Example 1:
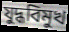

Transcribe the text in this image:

যুদ্ধবিমুখ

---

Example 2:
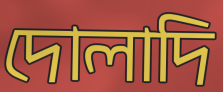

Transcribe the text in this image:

দোলাদি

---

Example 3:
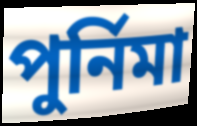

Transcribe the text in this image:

পুর্নিমা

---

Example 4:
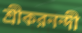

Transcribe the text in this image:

শ্রীকরনন্দী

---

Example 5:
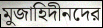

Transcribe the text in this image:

মুজাহিদীনদের